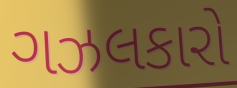
ગઝલકારો